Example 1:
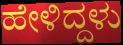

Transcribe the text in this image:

ಹೇಳಿದ್ದಳು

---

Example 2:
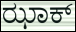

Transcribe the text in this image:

ಝಾಕ್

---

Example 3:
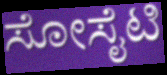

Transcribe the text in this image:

ಸೋಸೈಟಿ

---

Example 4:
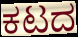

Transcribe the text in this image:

ಕಟದ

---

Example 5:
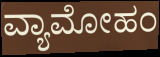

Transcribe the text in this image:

ವ್ಯಾಮೋಹಂ